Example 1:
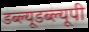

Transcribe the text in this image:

डब्ल्यूडब्ल्यूपी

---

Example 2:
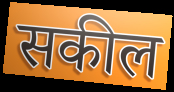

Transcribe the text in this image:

सकील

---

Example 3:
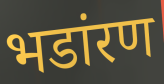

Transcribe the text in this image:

भडांरण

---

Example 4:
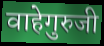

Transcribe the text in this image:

वाहेगुरुजी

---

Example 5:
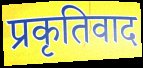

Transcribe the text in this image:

प्रकृतिवाद